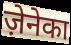
ज़ेनेका